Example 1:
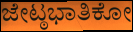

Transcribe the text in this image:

ಜೇಟ್ಠಭಾತಿಕೋ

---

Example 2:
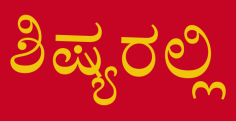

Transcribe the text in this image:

ಶಿಷ್ಯರಲ್ಲಿ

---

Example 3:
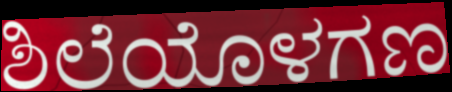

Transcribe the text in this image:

ಶಿಲೆಯೊಳಗಣ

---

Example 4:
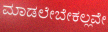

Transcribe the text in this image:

ಮಾಡಲೇಬೇಕಲ್ಲವೇ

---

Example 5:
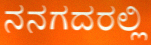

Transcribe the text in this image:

ನನಗದರಲ್ಲಿ